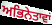
ਅਭਿਨੇਤਾਵਾਂ